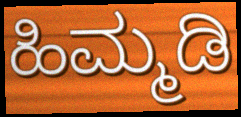
ಹಿಮ್ಮಡಿ